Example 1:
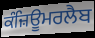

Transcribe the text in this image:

ਕੰਜ਼ਿਊਮਰਲੈਬ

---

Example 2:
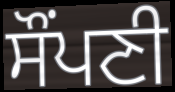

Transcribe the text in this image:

ਸੌਂਪਣੀ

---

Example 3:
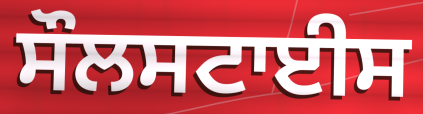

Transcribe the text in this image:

ਸੌਲਸਟਾਈਸ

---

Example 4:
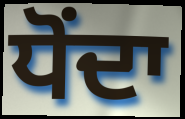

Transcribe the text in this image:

ਧੋਂਦਾ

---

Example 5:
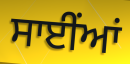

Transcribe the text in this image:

ਸਾਈਂਆਂ